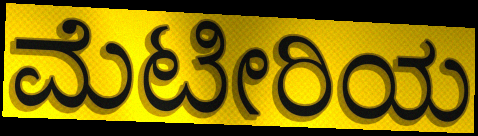
ಮೆಟೀರಿಯ